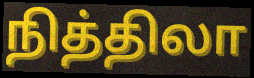
நித்திலா